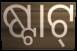
ଷ୍ଟାଟ୍